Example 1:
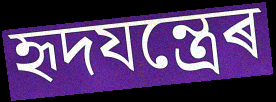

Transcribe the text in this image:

হৃদযন্ত্ৰেৰ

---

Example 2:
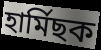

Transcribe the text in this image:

হাৰ্মিছক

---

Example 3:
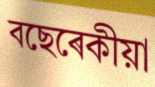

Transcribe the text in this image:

বছেৰেকীয়া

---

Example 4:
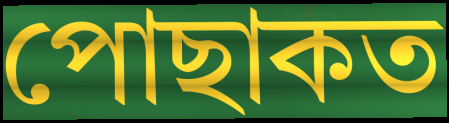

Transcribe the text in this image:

পোছাকত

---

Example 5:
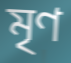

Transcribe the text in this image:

মৃণ